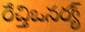
రేచ్తిఒనర్య్